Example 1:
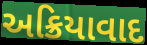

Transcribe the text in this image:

અક્રિયાવાદ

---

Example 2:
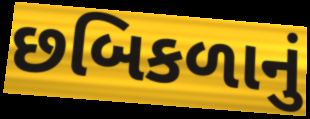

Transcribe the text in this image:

છબિકળાનું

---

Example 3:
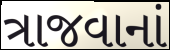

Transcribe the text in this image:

ત્રાજવાનાં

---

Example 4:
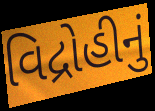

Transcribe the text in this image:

વિદ્રોહીનું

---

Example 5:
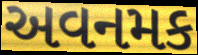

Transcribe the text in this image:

અવનમક